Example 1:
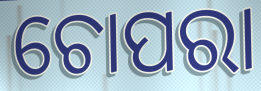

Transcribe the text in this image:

ଚୋପରା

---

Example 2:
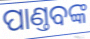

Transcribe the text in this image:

ପାଣ୍ତବଙ୍କ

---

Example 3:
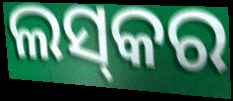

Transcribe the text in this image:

ଲସ୍‌କର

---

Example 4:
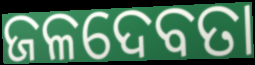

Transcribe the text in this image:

ଜଳଦେବତା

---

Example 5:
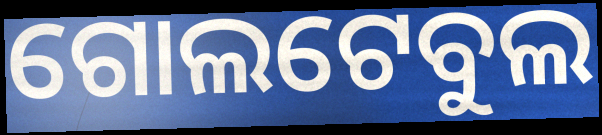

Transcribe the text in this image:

ଗୋଲଟେବୁଲ